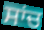
ਸਾਂਚ